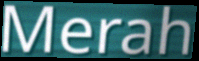
Merah